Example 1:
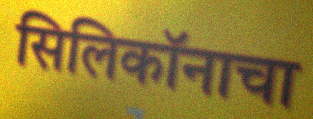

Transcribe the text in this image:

सिलिकॉनाचा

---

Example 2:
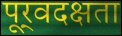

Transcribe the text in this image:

पूर्वदक्षता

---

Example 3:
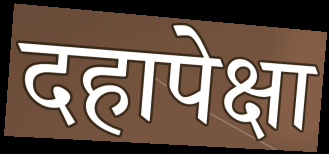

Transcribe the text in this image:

दहापेक्षा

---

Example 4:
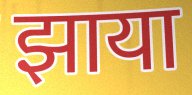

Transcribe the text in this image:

झाया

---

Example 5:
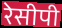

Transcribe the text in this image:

रेसीपी